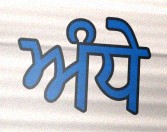
ਅੰਧੇ